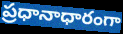
ప్రధానాధారంగా